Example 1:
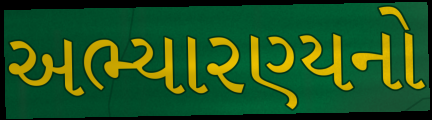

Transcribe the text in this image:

અભ્યારણ્યનો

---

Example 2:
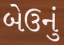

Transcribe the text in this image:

બેઉનું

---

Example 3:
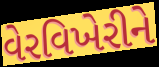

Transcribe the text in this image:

વેરવિખેરીને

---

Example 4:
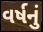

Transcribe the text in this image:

વર્ષનું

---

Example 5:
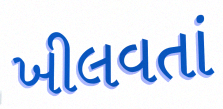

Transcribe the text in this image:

ખીલવતાં